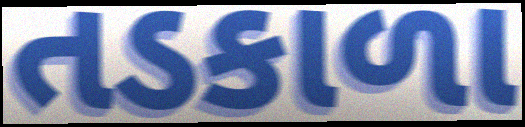
તડકાળા